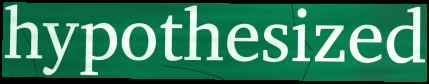
hypothesized